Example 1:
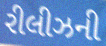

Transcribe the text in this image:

રીલીઝની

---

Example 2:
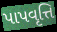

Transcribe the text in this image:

પાપવૃત્તિ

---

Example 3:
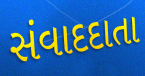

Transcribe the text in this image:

સંવાદદાતા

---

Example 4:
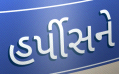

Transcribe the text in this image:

હર્પીસને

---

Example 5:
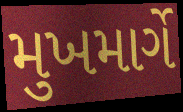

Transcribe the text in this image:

મુખમાર્ગે